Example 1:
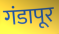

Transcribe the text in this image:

गंडापूर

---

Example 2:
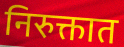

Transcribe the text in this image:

निरुक्तात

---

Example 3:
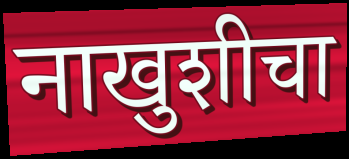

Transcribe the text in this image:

नाखुशीचा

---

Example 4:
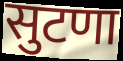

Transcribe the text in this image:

सुटणा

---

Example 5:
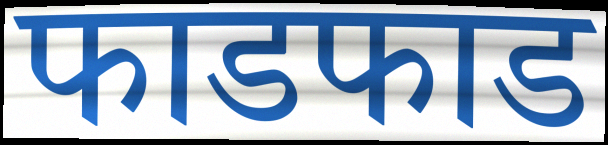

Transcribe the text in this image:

फाडफाड